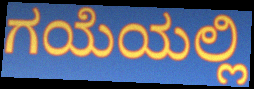
ಗಯೆಯಲ್ಲಿ